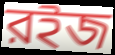
রইজ